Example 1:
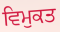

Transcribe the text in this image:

ਵਿਮੁਕਤ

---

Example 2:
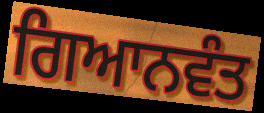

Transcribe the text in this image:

ਗਿਆਨਵੰਤ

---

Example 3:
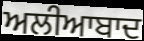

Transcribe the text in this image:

ਅਲੀਆਬਾਦ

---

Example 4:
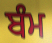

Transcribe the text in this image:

ਬੰਮ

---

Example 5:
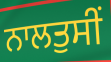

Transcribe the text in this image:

ਨਾਲਤੁਸੀਂ